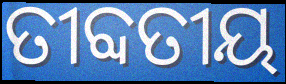
ତୀବ୍ଦତୀୟ